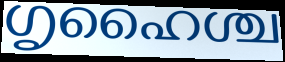
ഗൃഹൈശ്ച